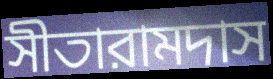
সীতারামদাস